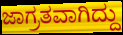
ಜಾಗ್ರತವಾಗಿದ್ದು